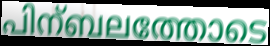
പിന്ബലത്തോടെ